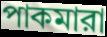
পাকমারা